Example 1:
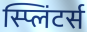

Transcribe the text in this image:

स्प्लिंटर्स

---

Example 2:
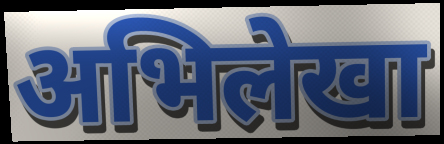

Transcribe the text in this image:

अभिलेखा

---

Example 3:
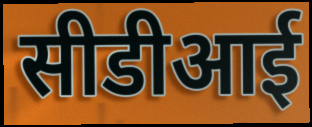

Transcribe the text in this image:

सीडीआई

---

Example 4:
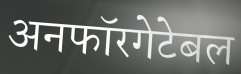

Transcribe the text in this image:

अनफॉरगेटेबल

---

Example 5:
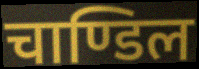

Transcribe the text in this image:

चाण्डिल